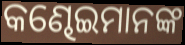
କଣ୍ଢେଇମାନଙ୍କ